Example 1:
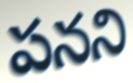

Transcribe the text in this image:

పనని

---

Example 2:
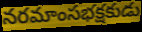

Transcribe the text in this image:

నరమాంసభక్షకుడు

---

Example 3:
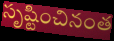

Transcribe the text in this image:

సృష్టించినంత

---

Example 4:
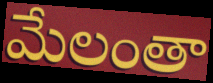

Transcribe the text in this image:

మేలంతా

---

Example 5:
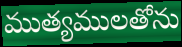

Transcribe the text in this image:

ముత్యములతోను